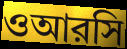
ওআরসি